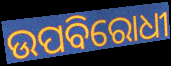
ଉପବିରୋଧୀ